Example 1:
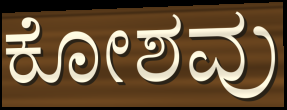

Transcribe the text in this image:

ಕೋಶವು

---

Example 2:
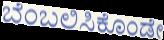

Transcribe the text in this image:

ಬೆಂಬಲಿಸಿಕೊಂಡೇ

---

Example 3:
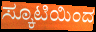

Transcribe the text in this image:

ಸ್ಕೂಟಿಯಿಂದ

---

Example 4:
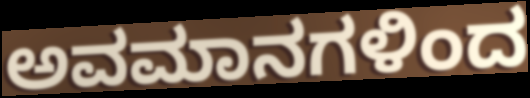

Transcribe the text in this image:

ಅವಮಾನಗಳಿಂದ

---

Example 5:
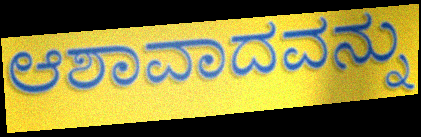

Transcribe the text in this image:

ಆಶಾವಾದವನ್ನು